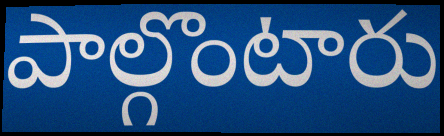
పాల్గొంటారు